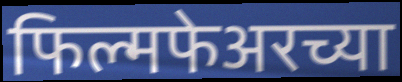
फिल्मफेअरच्या